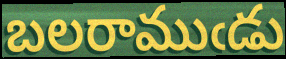
బలరాముఁడు